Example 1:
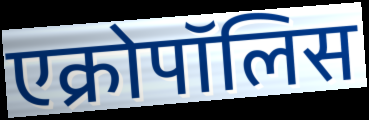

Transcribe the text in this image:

एक्रोपॉलिस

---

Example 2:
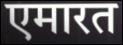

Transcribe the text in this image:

एमारत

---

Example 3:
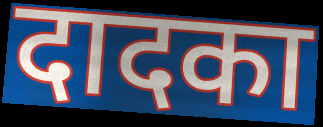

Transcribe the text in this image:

दादका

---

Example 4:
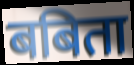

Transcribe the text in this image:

बबिता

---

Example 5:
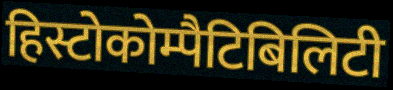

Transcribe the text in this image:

हिस्टोकोम्पैटिबिलिटी